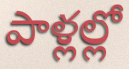
పాళ్లల్లో